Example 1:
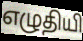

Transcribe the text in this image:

எழுதியி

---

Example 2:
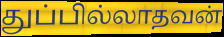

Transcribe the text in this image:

துப்பில்லாதவன்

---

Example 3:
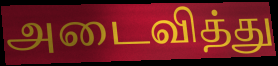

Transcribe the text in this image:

அடைவித்து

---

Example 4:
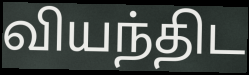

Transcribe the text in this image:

வியந்திட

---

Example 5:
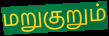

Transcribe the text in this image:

மறுகுறும்